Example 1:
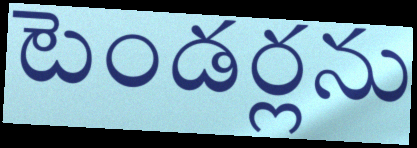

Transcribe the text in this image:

టెండర్లను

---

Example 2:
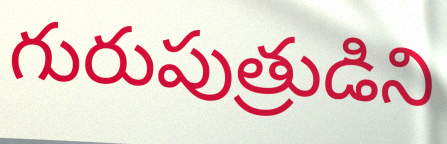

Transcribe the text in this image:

గురుపుత్రుడిని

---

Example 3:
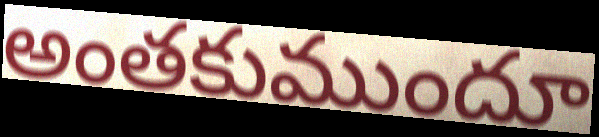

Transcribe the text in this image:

అంతకుముందూ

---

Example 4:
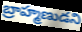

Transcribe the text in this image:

బ్రాహ్మణుడని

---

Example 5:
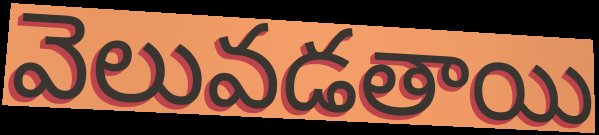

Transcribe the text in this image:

వెలువడతాయి